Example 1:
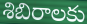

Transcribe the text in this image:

శిబిరాలకు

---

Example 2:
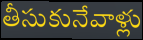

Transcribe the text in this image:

తీసుకునేవాళ్లు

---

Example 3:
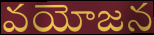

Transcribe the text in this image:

వయోజన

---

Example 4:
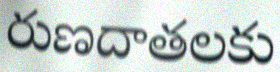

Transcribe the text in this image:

రుణదాతలకు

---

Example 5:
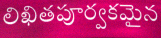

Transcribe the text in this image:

లిఖితపూర్వకమైన